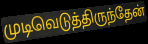
முடிவெடுத்திருந்தேன்